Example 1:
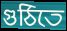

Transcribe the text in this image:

গুঠিতে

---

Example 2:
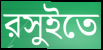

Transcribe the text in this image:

রসুইতে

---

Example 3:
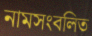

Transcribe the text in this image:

নামসংবলিত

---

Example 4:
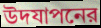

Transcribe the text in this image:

উদযাপনের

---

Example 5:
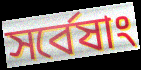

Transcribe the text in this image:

সর্বেষাং